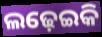
ଲଢ଼େଇକି